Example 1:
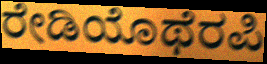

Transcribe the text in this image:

ರೇಡಿಯೊಥೆರಪಿ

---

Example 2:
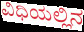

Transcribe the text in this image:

ವಿಧಿಯಲ್ಲಿನ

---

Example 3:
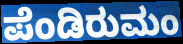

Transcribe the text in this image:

ಪೆಂಡಿರುಮಂ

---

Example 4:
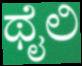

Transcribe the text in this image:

ಥೈಲಿ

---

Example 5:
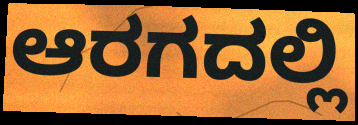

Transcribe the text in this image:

ಆರಗದಲ್ಲಿ